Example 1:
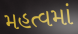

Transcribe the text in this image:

મહત્વમાં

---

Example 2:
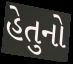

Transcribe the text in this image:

હેતુનો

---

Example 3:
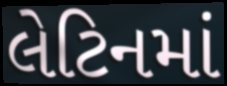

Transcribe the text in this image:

લેટિનમાં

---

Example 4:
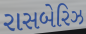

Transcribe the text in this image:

રાસબેરિઝ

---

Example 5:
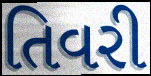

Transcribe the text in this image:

તિવરી